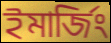
ইমার্জিং